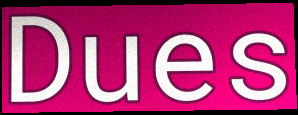
Dues